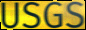
USGS